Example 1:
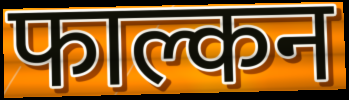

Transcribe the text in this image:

फाल्कन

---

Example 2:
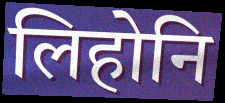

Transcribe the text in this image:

लिहोनि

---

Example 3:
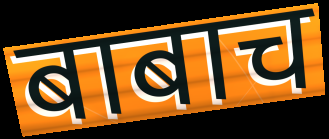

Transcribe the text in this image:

बाबाच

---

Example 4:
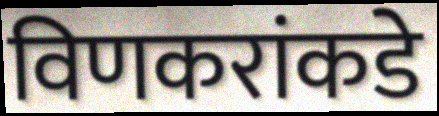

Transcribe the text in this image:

विणकरांकडे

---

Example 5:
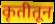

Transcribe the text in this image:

कृतीतून